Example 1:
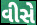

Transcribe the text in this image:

વીસે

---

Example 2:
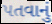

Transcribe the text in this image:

પતવાનું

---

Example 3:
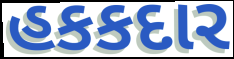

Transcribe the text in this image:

હકકદાર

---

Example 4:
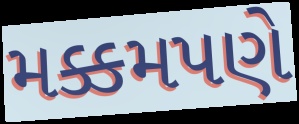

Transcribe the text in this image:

મક્કમપણે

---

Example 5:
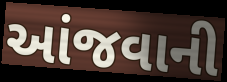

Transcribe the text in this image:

આંજવાની